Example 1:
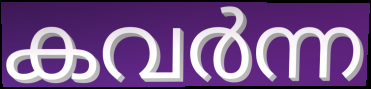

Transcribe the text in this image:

കവർന്ന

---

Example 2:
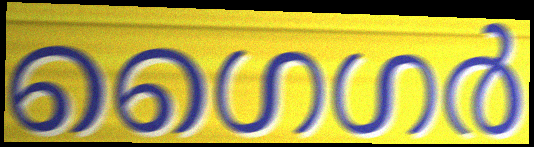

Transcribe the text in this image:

ഗൈഗർ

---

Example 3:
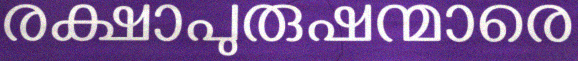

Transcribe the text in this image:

രക്ഷാപുരുഷന്മാരെ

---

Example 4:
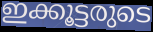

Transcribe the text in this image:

ഇക്കൂട്ടരുടെ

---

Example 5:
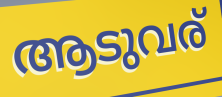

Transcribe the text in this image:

ആടുവര്